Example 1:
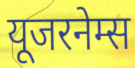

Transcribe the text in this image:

यूजरनेम्स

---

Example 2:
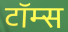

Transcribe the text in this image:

टॉम्स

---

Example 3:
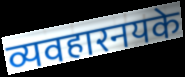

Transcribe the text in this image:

व्यवहारनयके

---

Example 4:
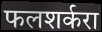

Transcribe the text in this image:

फलशर्करा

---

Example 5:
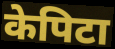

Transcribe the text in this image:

केपिटा